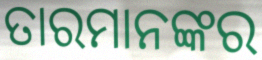
ତାରମାନଙ୍କର